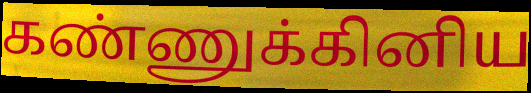
கண்ணுக்கினிய